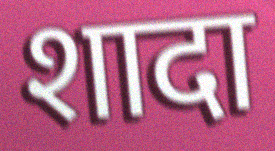
शादा